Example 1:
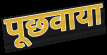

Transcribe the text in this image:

पूछवाया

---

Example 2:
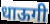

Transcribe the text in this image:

धाऊगी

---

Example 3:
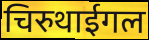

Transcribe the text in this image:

चिरुथाईगल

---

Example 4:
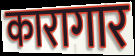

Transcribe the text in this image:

कारागार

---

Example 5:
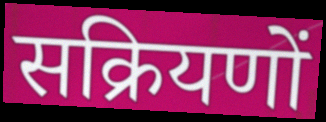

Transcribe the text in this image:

सक्रियणों